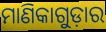
ମାଣିକାଗୁଡ଼ାର